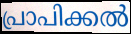
പ്രാപിക്കൽ